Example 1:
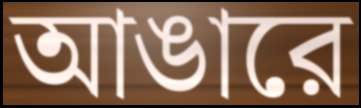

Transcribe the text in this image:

আঙারে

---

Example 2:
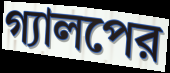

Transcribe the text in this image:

গ্যালপের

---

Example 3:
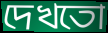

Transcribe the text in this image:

দেখতো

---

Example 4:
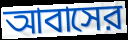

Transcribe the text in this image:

আবাসের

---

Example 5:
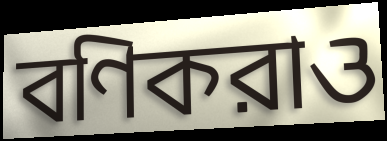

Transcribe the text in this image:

বণিকরাও